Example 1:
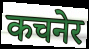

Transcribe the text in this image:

कचनेर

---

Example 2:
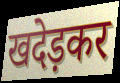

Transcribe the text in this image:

खदेड़कर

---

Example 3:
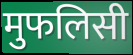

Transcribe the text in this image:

मुफलिसी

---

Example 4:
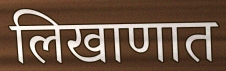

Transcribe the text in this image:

लिखाणात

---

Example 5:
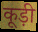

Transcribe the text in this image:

कूड़ी